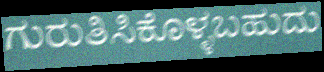
ಗುರುತಿಸಿಕೊಳ್ಳಬಹುದು